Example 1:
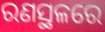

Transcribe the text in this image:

ରଣସ୍ଥଳରେ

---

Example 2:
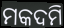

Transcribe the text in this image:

ମକଦମି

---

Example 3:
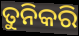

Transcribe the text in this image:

ତୁନିକରି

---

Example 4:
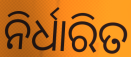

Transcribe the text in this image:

ନିର୍ଧାରିତ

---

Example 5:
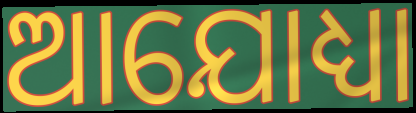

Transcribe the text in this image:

ଆଯୋଧ୍ୟା